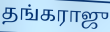
தங்கராஜு